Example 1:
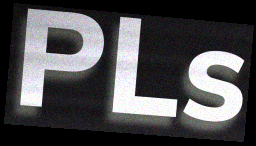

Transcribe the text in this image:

PLs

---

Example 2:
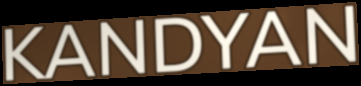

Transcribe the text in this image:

KANDYAN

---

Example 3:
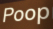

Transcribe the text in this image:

Poop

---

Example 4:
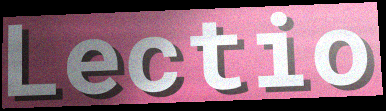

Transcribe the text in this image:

Lectio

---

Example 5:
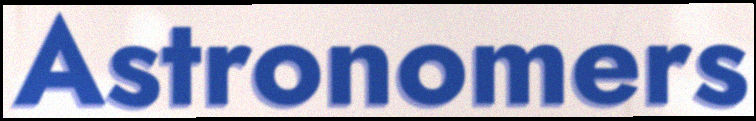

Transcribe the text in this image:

Astronomers